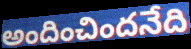
అందించిందనేది